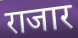
राजार